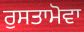
ਰੁਸਤਾਮੋਵਾ